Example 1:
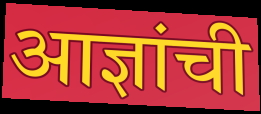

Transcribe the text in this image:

आज्ञांची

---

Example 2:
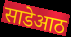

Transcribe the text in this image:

साडेआठ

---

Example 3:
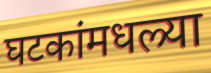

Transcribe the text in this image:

घटकांमधल्या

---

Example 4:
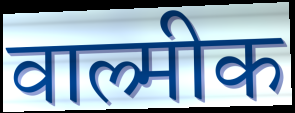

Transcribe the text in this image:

वाल्मीक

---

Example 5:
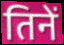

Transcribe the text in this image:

तिनें